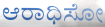
ಆರಾಧಿಸೋ